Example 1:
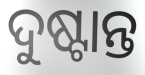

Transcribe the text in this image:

ଦୁଷ୍ଟାନ୍ତ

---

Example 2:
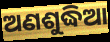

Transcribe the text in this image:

ଅଣଶୁଦ୍ଧିଆ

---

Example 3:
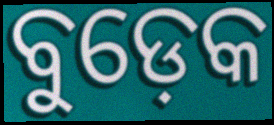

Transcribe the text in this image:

ବୁଡ଼େକ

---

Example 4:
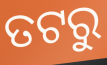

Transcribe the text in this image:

ତଟରୁ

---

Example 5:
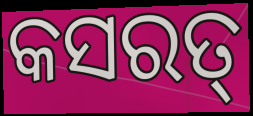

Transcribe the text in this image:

କସରତ୍